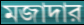
মজাদার